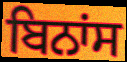
ਬਿਨਾਂਸ